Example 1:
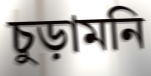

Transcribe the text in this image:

চুড়ামনি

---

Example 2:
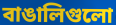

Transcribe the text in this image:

বাঙালিগুলো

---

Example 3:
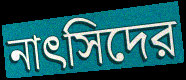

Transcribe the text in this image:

নাৎসিদের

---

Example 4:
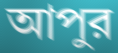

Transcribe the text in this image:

আপুর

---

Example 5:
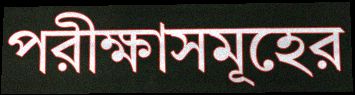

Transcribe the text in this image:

পরীক্ষাসমূহের